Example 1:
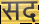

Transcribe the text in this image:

सद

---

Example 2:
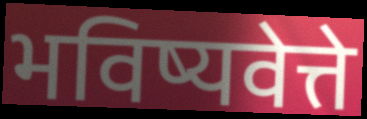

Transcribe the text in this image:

भविष्यवेत्ते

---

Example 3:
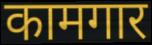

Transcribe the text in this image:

कामगार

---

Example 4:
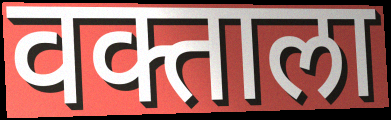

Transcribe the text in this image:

वक्ताला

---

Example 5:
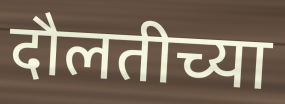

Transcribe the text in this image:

दौलतीच्या